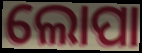
ଲୋପା